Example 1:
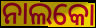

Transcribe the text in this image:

ନାଲକୋ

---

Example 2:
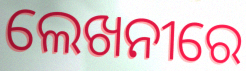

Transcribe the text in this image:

ଲେଖନୀରେ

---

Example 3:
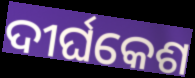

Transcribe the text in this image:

ଦୀର୍ଘକେଶ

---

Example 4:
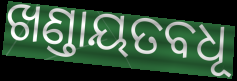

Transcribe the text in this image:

ଖଣ୍ଡାୟତବଧୂ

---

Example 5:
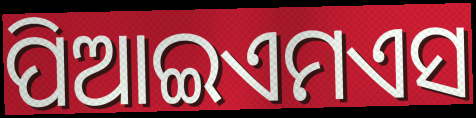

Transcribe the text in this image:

ପିଆଇଏମଏସ